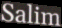
Salim